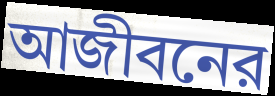
আজীবনের